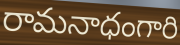
రామనాధంగారి